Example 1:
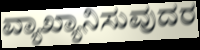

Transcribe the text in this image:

ವ್ಯಾಖ್ಯಾನಿಸುವುದರ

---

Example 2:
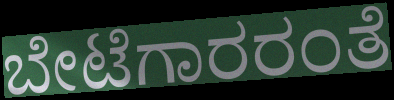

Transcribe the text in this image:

ಬೇಟೆಗಾರರಂತೆ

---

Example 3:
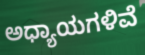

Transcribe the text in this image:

ಅಧ್ಯಾಯಗಳಿವೆ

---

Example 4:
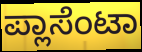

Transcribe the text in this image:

ಪ್ಲಾಸೆಂಟಾ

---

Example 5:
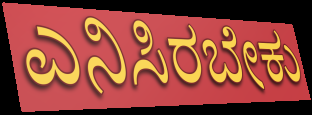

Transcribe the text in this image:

ಎನಿಸಿರಬೇಕು